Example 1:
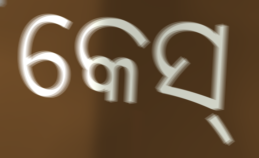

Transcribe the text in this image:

କେସ୍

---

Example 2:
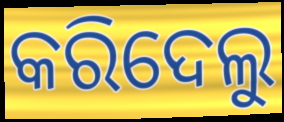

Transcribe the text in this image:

କରିଦେଲୁ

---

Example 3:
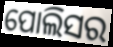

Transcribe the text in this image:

ପୋଲିସର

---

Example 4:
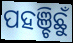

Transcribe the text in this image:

ପହଞ୍ଚିଛୁଁ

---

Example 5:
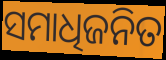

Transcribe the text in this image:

ସମାଧିଜନିତ